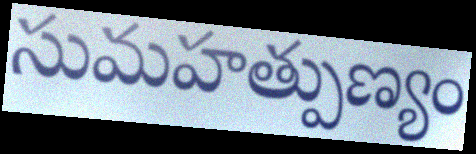
సుమహత్పుణ్యం